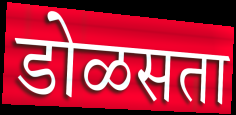
डोळसता